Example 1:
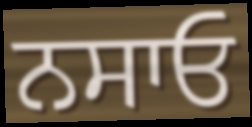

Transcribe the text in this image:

ਨਸਾਓ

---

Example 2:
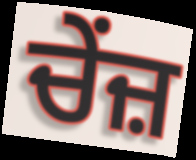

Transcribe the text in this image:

ਚੇਂਜ਼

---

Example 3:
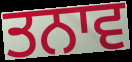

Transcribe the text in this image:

ਤਨਾਵ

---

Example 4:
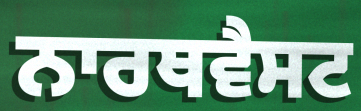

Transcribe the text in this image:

ਨਾਰਥਵੈਸਟ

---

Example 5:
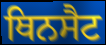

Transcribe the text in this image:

ਥਿਨਸੈਟ